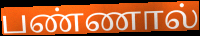
பண்ணால்